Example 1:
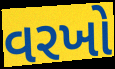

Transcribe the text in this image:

વરખો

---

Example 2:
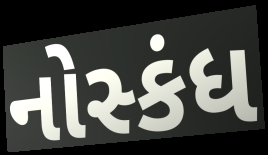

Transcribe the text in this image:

નોસ્કંધ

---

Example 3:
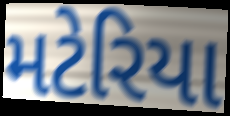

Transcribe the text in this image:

મટેરિયા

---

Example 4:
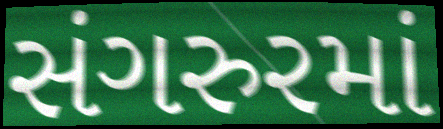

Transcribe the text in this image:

સંગરુરમાં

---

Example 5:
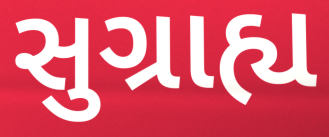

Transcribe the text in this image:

સુગ્રાહ્ય